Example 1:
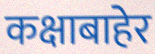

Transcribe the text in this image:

कक्षाबाहेर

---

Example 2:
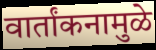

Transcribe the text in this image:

वार्तांकनामुळे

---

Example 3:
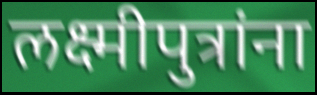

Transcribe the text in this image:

लक्ष्मीपुत्रांना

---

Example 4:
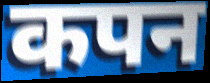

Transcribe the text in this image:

कपन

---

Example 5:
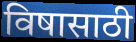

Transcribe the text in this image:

विषासाठी